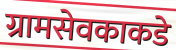
ग्रामसेवकाकडे